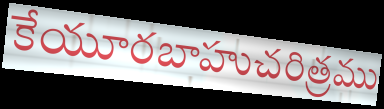
కేయూరబాహుచరిత్రము